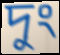
দুং